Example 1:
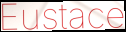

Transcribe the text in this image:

Eustace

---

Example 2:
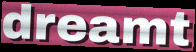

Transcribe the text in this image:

dreamt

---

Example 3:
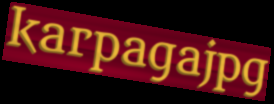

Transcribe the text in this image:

karpagajpg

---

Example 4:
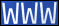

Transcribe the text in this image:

WWW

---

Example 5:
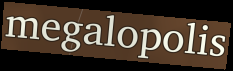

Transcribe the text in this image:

megalopolis